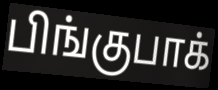
பிங்குபாக்